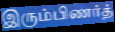
இரும்பிணர்த்